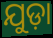
ଯୁଡ଼ା